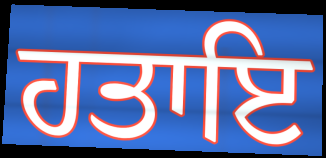
ਹਤਾਇ